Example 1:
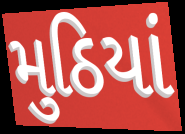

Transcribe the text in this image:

મુઠિયાં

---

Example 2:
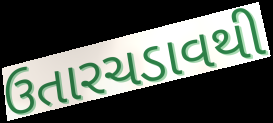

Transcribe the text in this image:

ઉતારચડાવથી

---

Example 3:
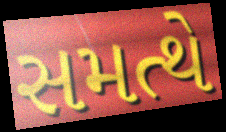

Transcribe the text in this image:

સમત્થે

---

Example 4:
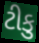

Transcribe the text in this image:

ટીકુ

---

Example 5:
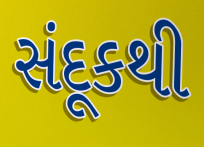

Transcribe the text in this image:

સંદૂકથી